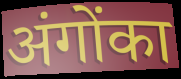
अंगोंका